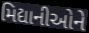
મિદ્યાનીઓને